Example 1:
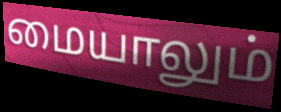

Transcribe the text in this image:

மையாலும்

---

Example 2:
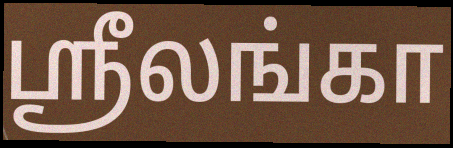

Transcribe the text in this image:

ஶ்ரீலங்கா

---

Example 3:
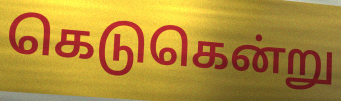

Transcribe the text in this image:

கெடுகென்று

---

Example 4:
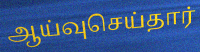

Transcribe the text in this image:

ஆய்வுசெய்தார்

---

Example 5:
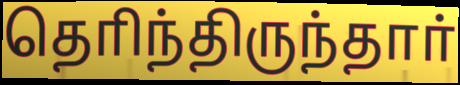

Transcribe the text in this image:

தெரிந்திருந்தார்